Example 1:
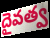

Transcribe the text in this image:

దైవత్వ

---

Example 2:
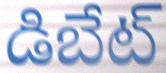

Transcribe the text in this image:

డిబేట్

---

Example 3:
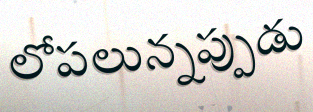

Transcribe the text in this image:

లోపలున్నప్పుడు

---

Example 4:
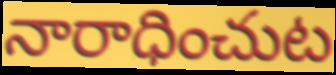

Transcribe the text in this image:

నారాధించుట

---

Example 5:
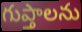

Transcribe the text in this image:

గుప్తాలను